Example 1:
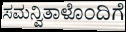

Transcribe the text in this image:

ಸಮನ್ವಿತಾಳೊಂದಿಗೆ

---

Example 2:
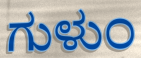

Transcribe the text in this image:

ಗುಳುಂ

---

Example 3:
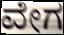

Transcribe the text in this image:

ವೇಗ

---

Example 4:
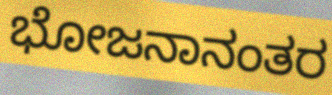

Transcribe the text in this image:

ಭೋಜನಾನಂತರ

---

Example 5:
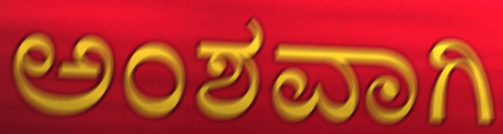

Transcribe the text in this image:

ಅಂಶವಾಗಿ